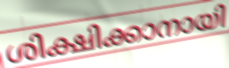
ശിക്ഷിക്കാനായി